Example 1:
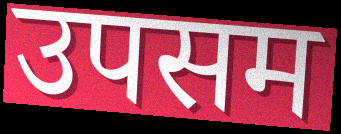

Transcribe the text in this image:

उपसम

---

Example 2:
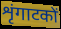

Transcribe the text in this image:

शृंगाटकों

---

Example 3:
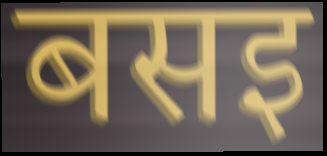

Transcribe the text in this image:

बसइ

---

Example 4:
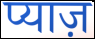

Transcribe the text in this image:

प्याज़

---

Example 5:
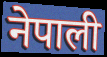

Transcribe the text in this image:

नेपाली